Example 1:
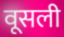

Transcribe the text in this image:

वूसली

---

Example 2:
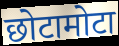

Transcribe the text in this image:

छोटामोटा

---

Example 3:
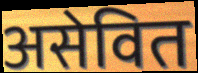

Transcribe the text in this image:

असेवित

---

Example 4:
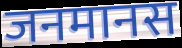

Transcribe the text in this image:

जनमानस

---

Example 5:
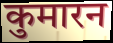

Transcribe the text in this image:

कुमारन